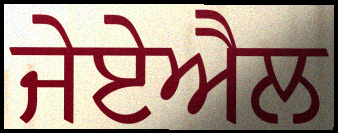
ਜੇਏਐਲ